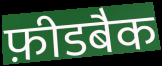
फ़ीडबैक